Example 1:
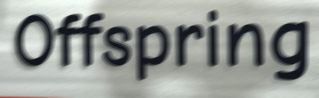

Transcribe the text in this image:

Offspring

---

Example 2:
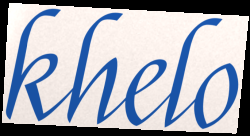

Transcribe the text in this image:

khelo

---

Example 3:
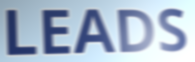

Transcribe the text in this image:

LEADS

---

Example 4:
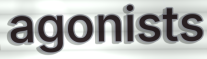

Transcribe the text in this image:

agonists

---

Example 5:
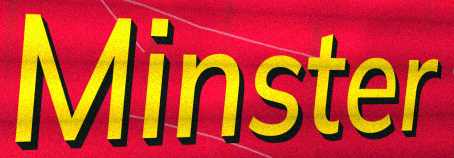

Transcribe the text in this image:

Minster